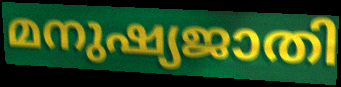
മനുഷ്യജാതി